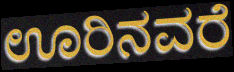
ಊರಿನವರೆ